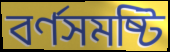
বর্ণসমষ্টি